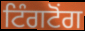
ਟਿੰਗਟੋਂਗ